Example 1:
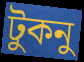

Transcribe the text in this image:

টুকনু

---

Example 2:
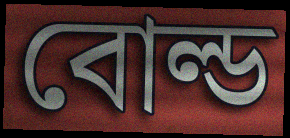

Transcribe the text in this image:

বোল্ড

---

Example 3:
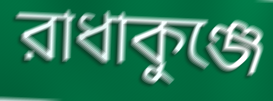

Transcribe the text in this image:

রাধাকুঞ্জে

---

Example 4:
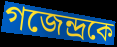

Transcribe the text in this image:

গজেন্দ্রকে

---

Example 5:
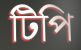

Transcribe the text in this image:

টিপি